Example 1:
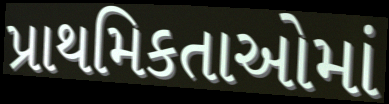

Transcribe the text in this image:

પ્રાથમિકતાઓમાં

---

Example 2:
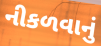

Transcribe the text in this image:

નીકળવાનું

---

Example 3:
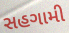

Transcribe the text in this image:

સહગામી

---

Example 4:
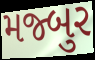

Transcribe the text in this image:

મજ્બુર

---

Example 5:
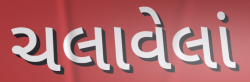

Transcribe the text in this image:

ચલાવેલાં